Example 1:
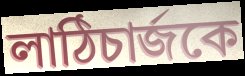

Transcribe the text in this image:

লাঠিচার্জকে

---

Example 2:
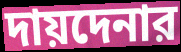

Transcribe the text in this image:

দায়দেনার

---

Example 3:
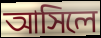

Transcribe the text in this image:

আসিলে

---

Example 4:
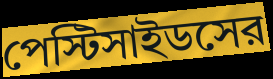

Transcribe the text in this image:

পেস্টিসাইডসের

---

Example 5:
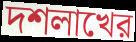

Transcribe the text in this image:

দশলাখের